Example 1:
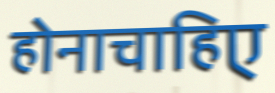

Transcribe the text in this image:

होनाचाहिए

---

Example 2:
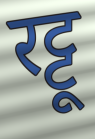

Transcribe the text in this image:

रट्टू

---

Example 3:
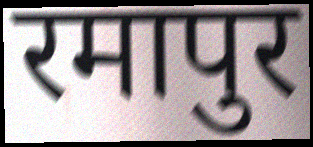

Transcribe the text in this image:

रमापुर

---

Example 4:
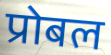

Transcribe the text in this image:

प्रोबल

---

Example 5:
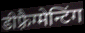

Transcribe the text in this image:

डीफ़्रैग्मेन्टिंग